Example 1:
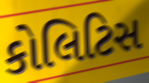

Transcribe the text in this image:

કોલિટિસ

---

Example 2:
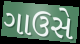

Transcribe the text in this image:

ગાઉસે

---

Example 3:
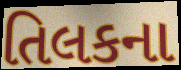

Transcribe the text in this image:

તિલકના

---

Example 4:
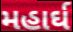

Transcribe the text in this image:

મહાર્ઘ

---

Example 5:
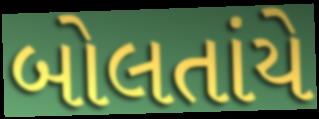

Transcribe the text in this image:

બોલતાંયે